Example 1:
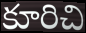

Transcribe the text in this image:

కూరిచి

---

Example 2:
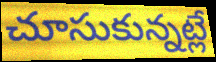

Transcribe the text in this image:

చూసుకున్నట్లే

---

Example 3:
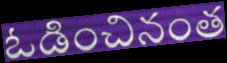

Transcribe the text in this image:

ఓడించినంత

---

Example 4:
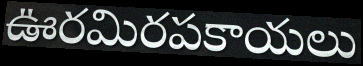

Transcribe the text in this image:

ఊరమిరపకాయలు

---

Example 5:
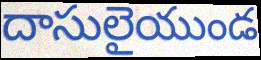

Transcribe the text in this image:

దాసులైయుండ